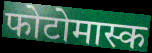
फोटोमास्क